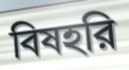
বিষহরি